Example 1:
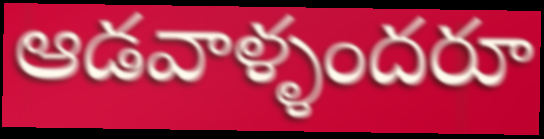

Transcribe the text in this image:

ఆడవాళ్ళందరూ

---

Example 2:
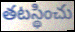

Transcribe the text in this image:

తటస్థించు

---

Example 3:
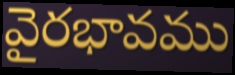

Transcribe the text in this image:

వైరభావము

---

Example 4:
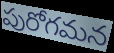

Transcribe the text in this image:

పురోగమన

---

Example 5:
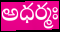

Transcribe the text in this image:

అధర్మః